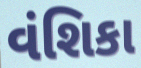
વંશિકા